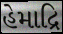
હેમાદ્રિ